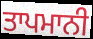
ਤਾਪਮਾਨੀ